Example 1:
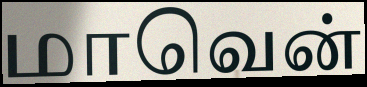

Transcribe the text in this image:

மாவென்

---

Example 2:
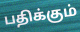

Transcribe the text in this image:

பதிக்கும்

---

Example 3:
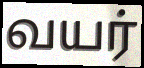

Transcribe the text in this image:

வயர்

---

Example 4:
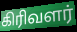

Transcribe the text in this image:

கிரிவளர்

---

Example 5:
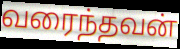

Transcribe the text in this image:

வரைந்தவன்